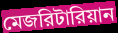
মেজরিটারিয়ান